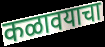
कळावयाचा